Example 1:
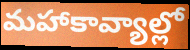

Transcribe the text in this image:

మహాకావ్యాల్లో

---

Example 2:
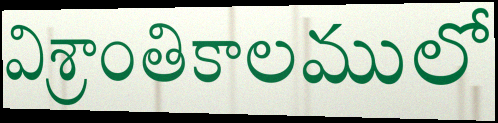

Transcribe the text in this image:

విశ్రాంతికాలములో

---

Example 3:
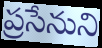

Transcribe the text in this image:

ప్రసేనుని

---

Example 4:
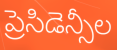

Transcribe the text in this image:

ప్రెసిడెన్సీల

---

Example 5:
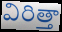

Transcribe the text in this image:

విరిత్తా